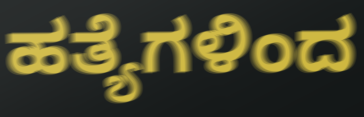
ಹತ್ಯೆಗಳಿಂದ